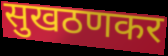
सुखठणकर